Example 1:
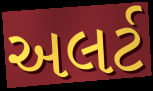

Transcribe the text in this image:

અલર્ટ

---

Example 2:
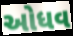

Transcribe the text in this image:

ઓધવ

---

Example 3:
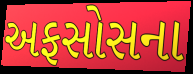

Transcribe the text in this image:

અફસોસના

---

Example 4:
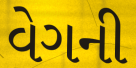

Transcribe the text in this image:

વેગની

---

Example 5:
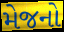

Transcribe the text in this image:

મેજનો